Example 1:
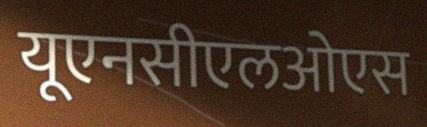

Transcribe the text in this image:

यूएनसीएलओएस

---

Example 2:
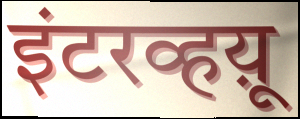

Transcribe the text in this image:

इंटरव्हय़ू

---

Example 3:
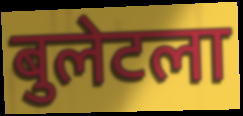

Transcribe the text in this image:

बुलेटला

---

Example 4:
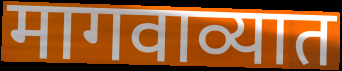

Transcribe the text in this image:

मागवाव्यात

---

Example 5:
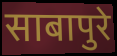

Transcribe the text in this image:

साबापुरे